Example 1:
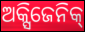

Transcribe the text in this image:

ଅକ୍ସିଜେନିକ୍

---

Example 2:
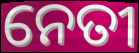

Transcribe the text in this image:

ନେତୀ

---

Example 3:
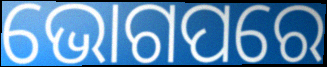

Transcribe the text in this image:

ଭୋଗପରେ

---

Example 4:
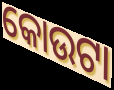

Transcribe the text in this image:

କୋଉଟା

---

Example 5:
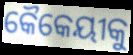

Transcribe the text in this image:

କୈକେୟୀକୁ